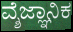
ವ್ಶೆಜ್ಞಾನಿಕ